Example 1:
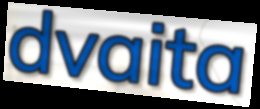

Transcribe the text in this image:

dvaita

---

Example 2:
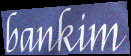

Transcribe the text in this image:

bankim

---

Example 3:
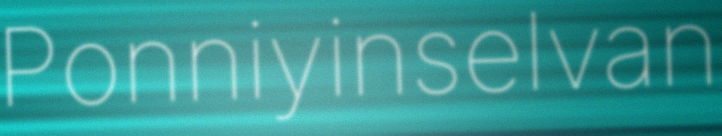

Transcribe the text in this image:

Ponniyinselvan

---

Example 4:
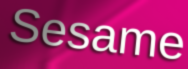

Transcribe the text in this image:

Sesame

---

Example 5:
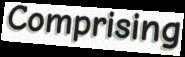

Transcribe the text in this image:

Comprising